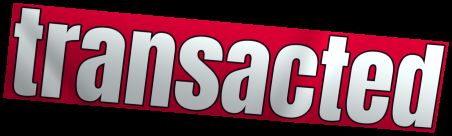
transacted